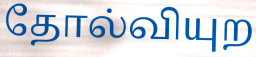
தோல்வியுற